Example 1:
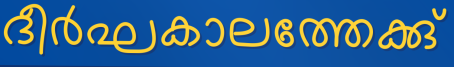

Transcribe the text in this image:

ദീർഘകാലത്തേക്കു്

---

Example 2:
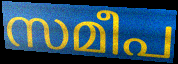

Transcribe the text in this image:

സമീപ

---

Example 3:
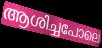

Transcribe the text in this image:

ആശിച്ചപോലെ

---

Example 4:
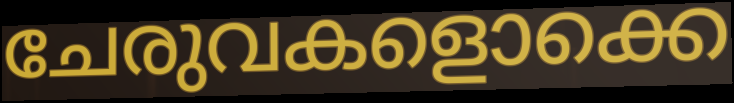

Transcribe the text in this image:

ചേരുവകളൊക്കെ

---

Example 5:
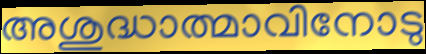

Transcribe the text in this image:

അശുദ്ധാത്മാവിനോടു